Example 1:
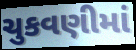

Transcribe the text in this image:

ચુકવણીમાં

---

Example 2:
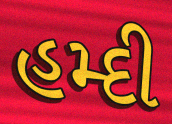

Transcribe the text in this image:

હમ્દી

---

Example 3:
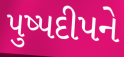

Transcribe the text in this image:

પુષ્પદીપને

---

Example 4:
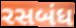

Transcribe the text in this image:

રસબંધ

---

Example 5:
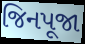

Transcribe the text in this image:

જિનપૂજા